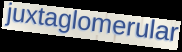
juxtaglomerular